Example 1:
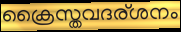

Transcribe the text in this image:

ക്രൈസ്തവദര്ശനം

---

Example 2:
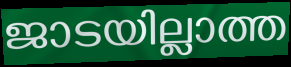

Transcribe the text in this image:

ജാടയില്ലാത്ത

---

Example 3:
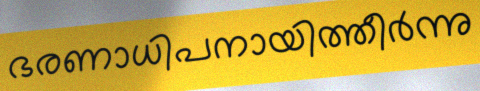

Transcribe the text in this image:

ഭരണാധിപനായിത്തീർന്നു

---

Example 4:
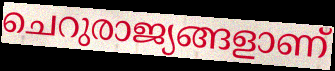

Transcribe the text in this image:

ചെറുരാജ്യങ്ങളാണ്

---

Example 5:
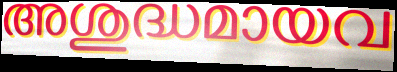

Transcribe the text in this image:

അശുദ്ധമായവ